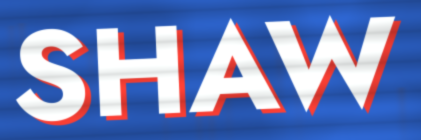
SHAW